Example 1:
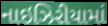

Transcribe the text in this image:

નાઇઝિરીયામાં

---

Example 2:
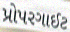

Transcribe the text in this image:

પ્રોપરગાઈટ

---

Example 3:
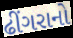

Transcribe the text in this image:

ઢીંગરાનો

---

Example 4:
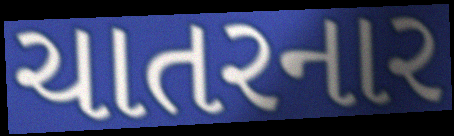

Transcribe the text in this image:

ચાતરનાર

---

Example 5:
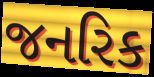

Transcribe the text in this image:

જનરિક